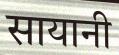
सायानी